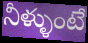
నీళ్ళుంటే